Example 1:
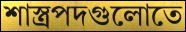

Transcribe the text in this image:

শাস্ত্রপদগুলোতে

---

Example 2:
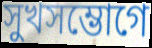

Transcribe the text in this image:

সুখসম্ভোগে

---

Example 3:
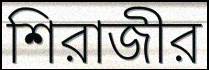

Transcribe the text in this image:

শিরাজীর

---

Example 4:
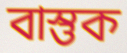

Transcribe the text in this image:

বাস্তুক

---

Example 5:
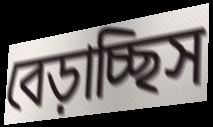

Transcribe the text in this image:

বেড়াচ্ছিস